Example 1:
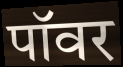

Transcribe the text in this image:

पॉवर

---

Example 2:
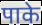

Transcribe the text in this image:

पाके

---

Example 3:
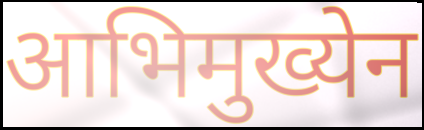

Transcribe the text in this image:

आभिमुख्येन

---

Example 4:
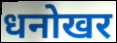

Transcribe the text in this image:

धनोखर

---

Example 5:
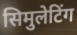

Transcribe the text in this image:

सिमुलेटिंग